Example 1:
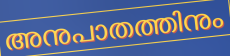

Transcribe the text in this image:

അനുപാതത്തിനും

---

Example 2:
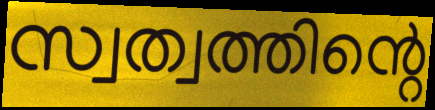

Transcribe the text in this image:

സ്വത്വത്തിന്റെ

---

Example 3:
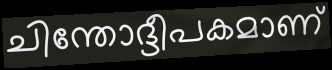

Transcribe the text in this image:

ചിന്തോദ്ദീപകമാണ്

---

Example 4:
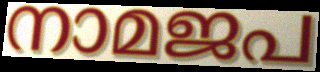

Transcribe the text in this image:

നാമജപ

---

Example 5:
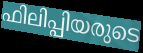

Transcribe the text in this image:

ഫിലിപ്പിയരുടെ